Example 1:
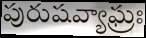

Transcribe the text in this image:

పురుషవ్యాఘ్రః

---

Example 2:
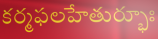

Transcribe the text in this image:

కర్మఫలహేతుర్భూః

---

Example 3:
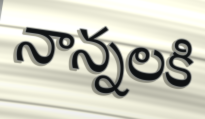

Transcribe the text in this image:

నాన్నలకి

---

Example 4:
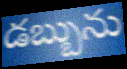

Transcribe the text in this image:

డబ్బును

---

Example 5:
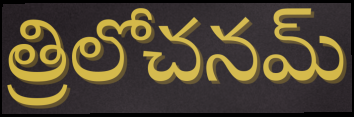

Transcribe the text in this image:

త్రిలోచనమ్